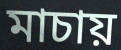
মাচায়